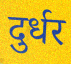
दुर्धर